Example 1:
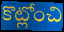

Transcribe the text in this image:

కొట్లోంచి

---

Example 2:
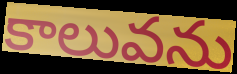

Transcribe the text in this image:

కాలువను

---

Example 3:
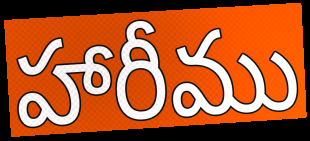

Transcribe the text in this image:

హారీము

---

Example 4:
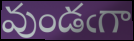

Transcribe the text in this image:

వుండఁగా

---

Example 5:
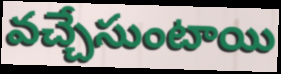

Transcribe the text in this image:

వచ్చేసుంటాయి